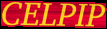
CELPIP